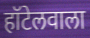
हॉटेलवाला